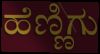
ಹೆಣ್ಣಿಗು